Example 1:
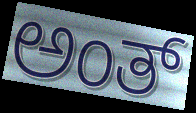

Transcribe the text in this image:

ಅಂತ್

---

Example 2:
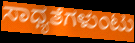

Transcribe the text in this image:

ಸಾಧ್ಯತೆಗಳುಂಟು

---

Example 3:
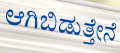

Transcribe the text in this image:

ಆಗಿಬಿಡುತ್ತೇನೆ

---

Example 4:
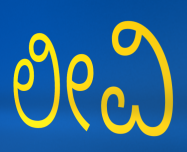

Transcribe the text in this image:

ಲೀವಿ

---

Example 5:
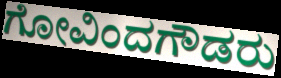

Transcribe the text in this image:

ಗೋವಿಂದಗೌಡರು